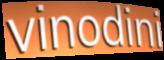
vinodini